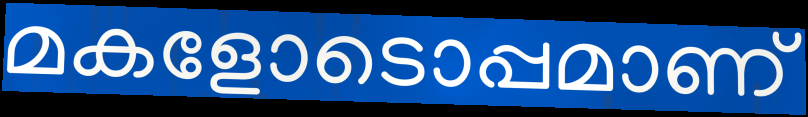
മകളോടൊപ്പമാണ്